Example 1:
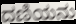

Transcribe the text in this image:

ದಣಿಯನು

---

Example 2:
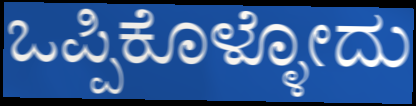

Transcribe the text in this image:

ಒಪ್ಪಿಕೊಳ್ಳೋದು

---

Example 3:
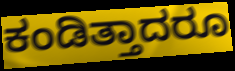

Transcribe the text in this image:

ಕಂಡಿತ್ತಾದರೂ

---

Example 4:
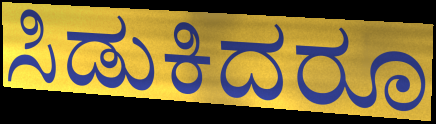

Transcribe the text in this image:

ಸಿಡುಕಿದರೂ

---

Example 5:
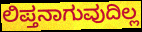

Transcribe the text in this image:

ಲಿಪ್ತನಾಗುವುದಿಲ್ಲ